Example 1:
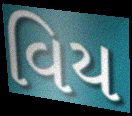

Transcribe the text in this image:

વિય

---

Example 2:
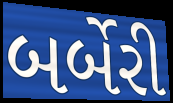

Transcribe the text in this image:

બર્બેરી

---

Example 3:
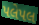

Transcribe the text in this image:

પલેપલ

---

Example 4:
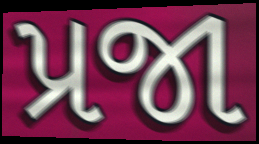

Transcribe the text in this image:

પ્રજા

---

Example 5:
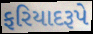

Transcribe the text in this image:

ફરિયાદરૂપે